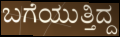
ಬಗೆಯುತ್ತಿದ್ದ